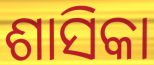
ଶାସିକା